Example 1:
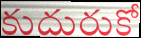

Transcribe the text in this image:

కుదురుకో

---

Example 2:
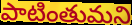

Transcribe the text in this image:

పాటింతుమని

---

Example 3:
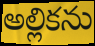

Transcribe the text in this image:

అల్లికను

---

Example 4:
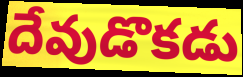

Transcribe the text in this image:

దేవుడొకడు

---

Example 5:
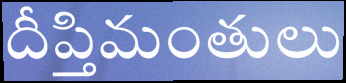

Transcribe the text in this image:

దీప్తిమంతులు